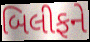
બિલીફને